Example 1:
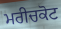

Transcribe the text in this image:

ਮਰੀਚਕੋਟ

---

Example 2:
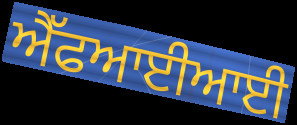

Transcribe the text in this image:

ਐੱਫਆਈਆਈ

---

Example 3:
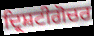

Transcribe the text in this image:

ਦ੍ਰਿਸ਼ਟੀਗੋਚਰ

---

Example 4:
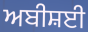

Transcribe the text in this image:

ਅਬੀਸ਼ਈ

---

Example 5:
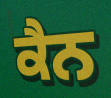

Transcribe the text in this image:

ਕੈਨ